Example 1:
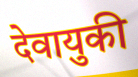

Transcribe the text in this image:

देवायुकी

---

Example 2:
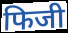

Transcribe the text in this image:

फिजी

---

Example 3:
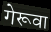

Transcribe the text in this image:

गेरूवा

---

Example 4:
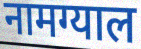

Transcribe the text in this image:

नामग्याल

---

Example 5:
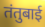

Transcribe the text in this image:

तंतुबाई